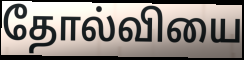
தோல்வியை